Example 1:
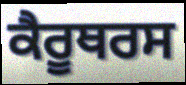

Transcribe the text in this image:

ਕੈਰੂਥਰਸ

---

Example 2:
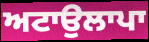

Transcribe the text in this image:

ਅਟਾਉਲਾਪਾ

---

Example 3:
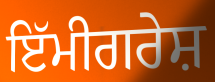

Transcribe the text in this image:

ਇੱਮੀਗਰੇਸ਼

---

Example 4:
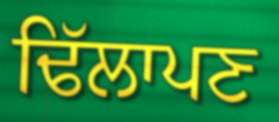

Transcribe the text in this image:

ਢਿੱਲਾਪਣ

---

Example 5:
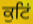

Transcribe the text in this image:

ਕੁਟਿਂ